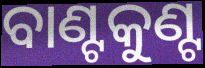
ବାଣ୍ଟକୁଣ୍ଟ